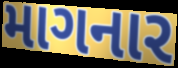
માગનાર